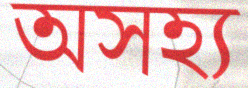
অসহ্য